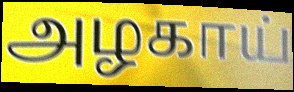
அழகாய்